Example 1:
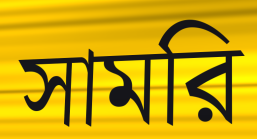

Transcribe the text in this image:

সামরি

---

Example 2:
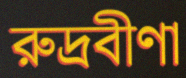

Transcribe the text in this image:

রুদ্রবীণা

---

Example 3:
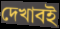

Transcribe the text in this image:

দেখাবই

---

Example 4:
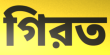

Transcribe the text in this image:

গিরত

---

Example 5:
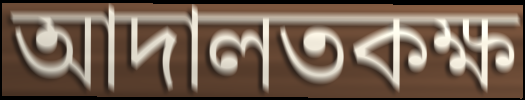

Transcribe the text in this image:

আদালতকক্ষ